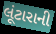
લૂંટારાની